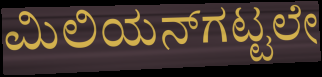
ಮಿಲಿಯನ್‌ಗಟ್ಟಲೇ